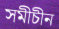
সমীচীন